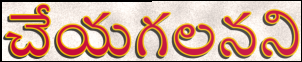
చేయగలనని